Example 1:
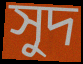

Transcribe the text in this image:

সুদ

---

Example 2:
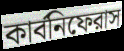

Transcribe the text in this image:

কার্বনিফেরাস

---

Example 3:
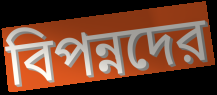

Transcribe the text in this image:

বিপন্নদের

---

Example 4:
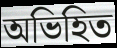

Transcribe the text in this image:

অভিহিত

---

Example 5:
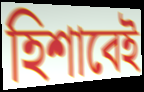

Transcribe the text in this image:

হিশাবেই